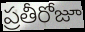
ప్రతీరోజూ